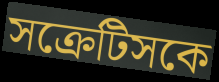
সক্রেটিসকে